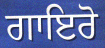
ਗਾਇਰੋ